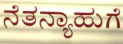
ನೆತನ್ಯಾಹುಗೆ